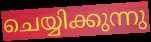
ചെയ്യിക്കുന്നു